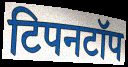
टिपनटॉप